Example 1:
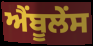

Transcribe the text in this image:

ਐਂਬੂਲੇਂਸ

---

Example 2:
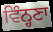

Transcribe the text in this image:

ਵਿੰਨ੍ਹਣਾ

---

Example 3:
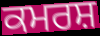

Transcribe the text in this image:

ਕਮਰਸ਼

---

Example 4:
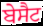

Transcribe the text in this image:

ਬੇਸੈਟ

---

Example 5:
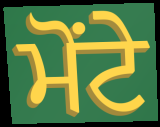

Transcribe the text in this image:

ਮੋਂਟੇ